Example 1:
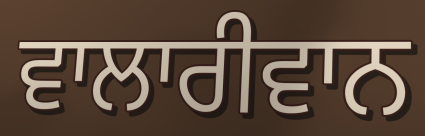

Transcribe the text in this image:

ਵਾਲਾਰੀਵਾਨ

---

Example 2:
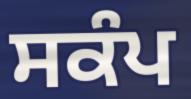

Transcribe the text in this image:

ਸਕੰਪ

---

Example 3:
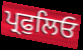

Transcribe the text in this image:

ਪ੍ਰਫੁਲਿਓ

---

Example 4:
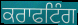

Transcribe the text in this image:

ਕਰਾਫਟਿੰਗ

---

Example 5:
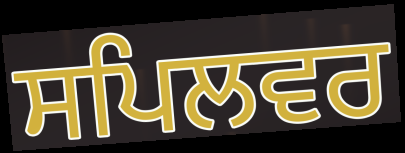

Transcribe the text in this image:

ਸਪਿਲਵਰ